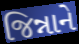
જિન્નાને